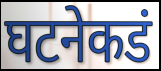
घटनेकडं